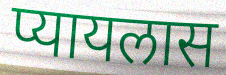
प्यायलास